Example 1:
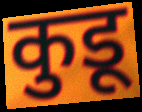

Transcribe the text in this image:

कुडू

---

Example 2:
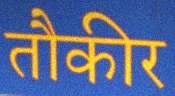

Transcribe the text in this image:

तौकीर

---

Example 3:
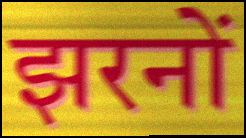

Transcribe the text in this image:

झरनों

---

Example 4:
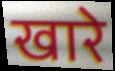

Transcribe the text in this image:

खारे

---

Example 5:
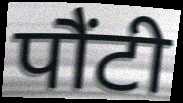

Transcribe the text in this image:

पौंटी